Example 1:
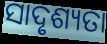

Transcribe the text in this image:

ସାଦୃଶ୍ୟତା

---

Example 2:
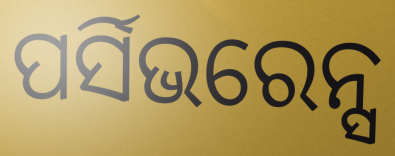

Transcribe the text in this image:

ପର୍ସିଭରେନ୍ସ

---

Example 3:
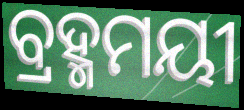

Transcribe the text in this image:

ବ୍ରହ୍ମମୟୀ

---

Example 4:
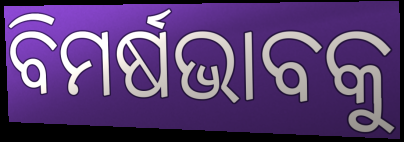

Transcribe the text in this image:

ବିମର୍ଷଭାବକୁ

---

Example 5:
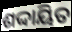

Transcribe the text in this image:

ଶଦ୍ଦାୟିତ